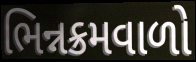
ભિન્નક્રમવાળો